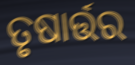
ତୃଷାର୍ତ୍ତର